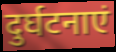
दुर्घटनाएं